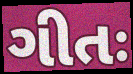
ગીતઃ